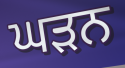
ਘੜਨ